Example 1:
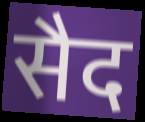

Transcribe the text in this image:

सैद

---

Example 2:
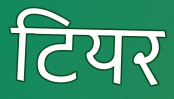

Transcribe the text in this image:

टियर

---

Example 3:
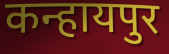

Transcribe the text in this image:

कन्हायपुर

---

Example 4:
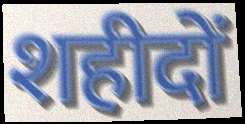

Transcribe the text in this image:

शहीदों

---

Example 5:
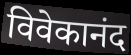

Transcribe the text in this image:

विवेकानंद